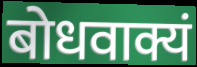
बोधवाक्यं